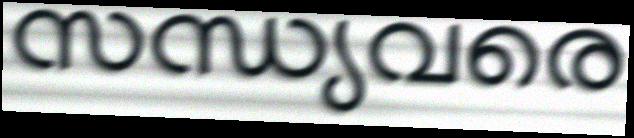
സന്ധ്യവരെ